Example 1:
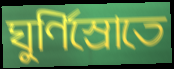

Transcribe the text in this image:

ঘুর্ণিস্রোতে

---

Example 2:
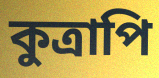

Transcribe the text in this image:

কুত্রাপি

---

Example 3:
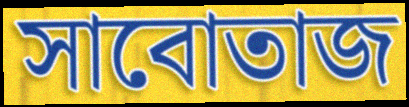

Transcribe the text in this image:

সাবোতাজ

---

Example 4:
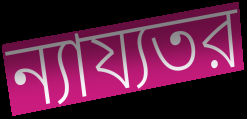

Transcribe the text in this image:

ন্যায্যতর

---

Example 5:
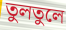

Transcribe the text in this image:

তুলতুলে